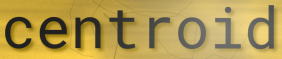
centroid